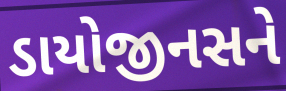
ડાયોજીનસને